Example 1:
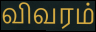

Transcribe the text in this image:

விவரம்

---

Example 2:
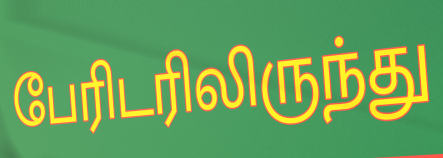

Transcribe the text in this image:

பேரிடரிலிருந்து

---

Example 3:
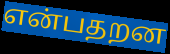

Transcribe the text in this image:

என்பதறன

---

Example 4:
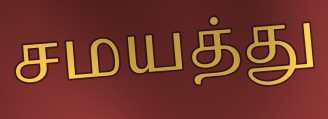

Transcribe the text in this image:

சமயத்து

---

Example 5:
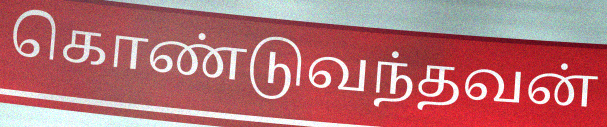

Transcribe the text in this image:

கொண்டுவந்தவன்